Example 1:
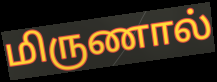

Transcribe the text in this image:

மிருணால்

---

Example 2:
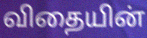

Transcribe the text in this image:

விதையின்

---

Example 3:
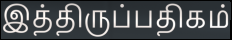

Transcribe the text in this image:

இத்திருப்பதிகம்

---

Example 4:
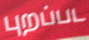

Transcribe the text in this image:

புறப்பட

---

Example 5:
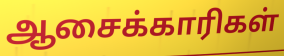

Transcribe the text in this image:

ஆசைக்காரிகள்